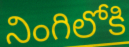
నింగిలోకి